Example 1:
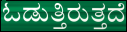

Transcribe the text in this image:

ಓಡುತ್ತಿರುತ್ತದೆ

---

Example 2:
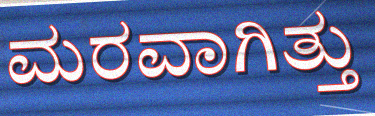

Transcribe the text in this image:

ಮರವಾಗಿತ್ತು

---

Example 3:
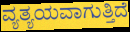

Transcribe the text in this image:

ವ್ಯತ್ಯಯವಾಗುತ್ತಿದೆ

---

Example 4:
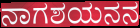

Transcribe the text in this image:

ನಾಗಶಯನನ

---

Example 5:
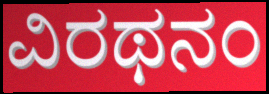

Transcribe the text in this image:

ವಿರಥನಂ